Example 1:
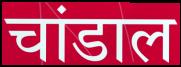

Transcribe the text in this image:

चांडाल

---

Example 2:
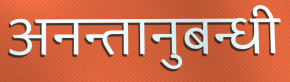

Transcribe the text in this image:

अनन्तानुबन्धी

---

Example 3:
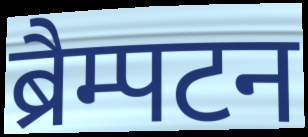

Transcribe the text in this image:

ब्रैम्पटन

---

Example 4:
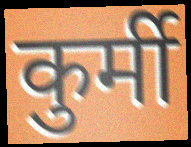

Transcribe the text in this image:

कुर्मी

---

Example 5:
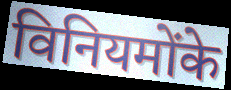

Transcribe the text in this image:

विनियमोंके